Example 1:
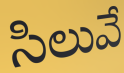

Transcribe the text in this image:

సిలువే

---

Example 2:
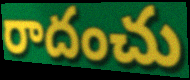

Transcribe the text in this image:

రాదంచు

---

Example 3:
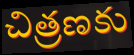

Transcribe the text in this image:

చిత్రణకు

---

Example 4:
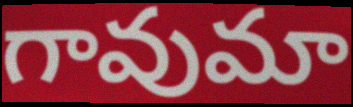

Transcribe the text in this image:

గావుమా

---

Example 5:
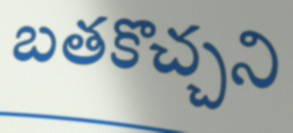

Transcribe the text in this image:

బతకొచ్చని